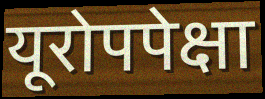
यूरोपपेक्षा